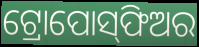
ଟ୍ରୋପୋସ୍‌ଫିଅର